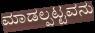
ಮಾಡಲ್ಪಟ್ಟವನು